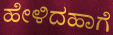
ಹೇಳಿದಹಾಗೆ